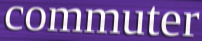
commuter